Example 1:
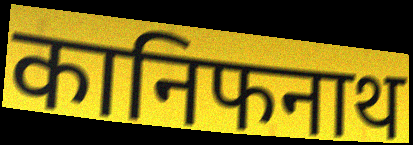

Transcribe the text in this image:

कानिफनाथ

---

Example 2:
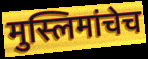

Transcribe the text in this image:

मुस्लिमांचेच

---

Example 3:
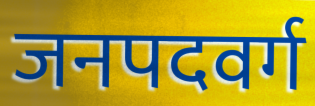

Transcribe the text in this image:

जनपदवर्ग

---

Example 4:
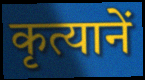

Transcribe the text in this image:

कृत्यानें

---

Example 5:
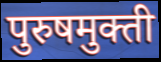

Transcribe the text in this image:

पुरुषमुक्ती